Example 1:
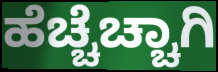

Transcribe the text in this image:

ಹೆಚ್ಚೆಚ್ಚಾಗಿ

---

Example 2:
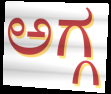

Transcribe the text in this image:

ಅಗ್ಗ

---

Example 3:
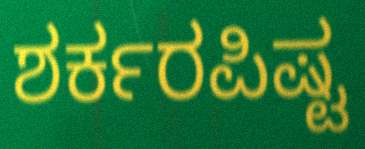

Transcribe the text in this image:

ಶರ್ಕರಪಿಷ್ಟ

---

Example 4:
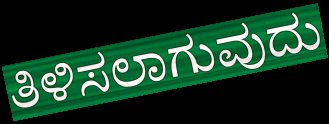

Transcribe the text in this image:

ತಿಳಿಸಲಾಗುವುದು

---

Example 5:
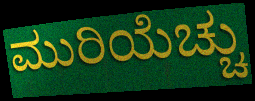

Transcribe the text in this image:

ಮುರಿಯೆಚ್ಚು